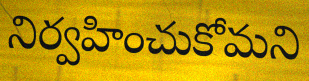
నిర్వహించుకోమని